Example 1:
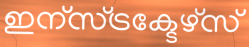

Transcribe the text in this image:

ഇന്സ്ട്രക്ടേഴ്സ്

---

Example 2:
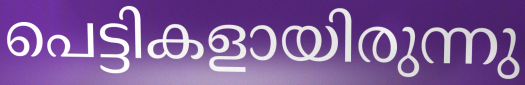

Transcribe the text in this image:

പെട്ടികളായിരുന്നു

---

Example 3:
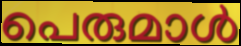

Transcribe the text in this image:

പെരുമാൾ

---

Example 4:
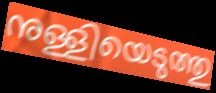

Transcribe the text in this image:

നുള്ളിയെടുത്തു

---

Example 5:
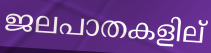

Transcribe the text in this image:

ജലപാതകളില്